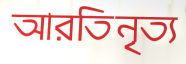
আরতিনৃত্য